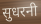
सुधरनी